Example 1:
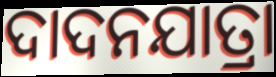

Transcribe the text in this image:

ଦାଦନଯାତ୍ରା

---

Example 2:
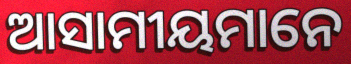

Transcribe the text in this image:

ଆସାମୀୟମାନେ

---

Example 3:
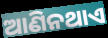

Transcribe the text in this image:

ଆଣିନଥାଏ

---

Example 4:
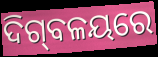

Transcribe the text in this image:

ଦିଗ୍‍ବଳୟରେ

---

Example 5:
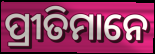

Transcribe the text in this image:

ପ୍ରୀତିମାନେ